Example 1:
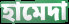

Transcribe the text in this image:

হামেদা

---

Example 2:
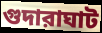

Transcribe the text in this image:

গুদারাঘাট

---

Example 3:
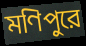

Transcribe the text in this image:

মণিপুরে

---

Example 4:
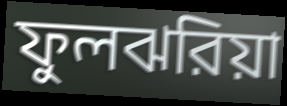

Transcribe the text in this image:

ফুলঝরিয়া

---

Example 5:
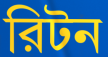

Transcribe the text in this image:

রিটন